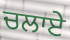
ਚਲਾਏ